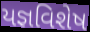
યજ્ઞવિશેષ